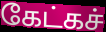
கேட்கச்